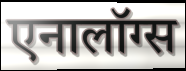
एनालॉग्स